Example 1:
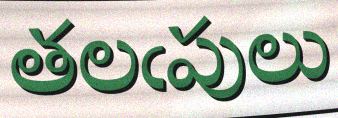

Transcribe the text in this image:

తలఁపులు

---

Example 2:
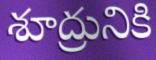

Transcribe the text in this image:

శూద్రునికి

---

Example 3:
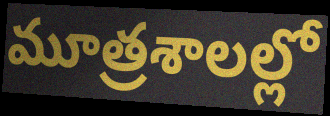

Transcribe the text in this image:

మూత్రశాలల్లో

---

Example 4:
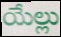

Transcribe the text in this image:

యేల్లు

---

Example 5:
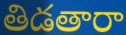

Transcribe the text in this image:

తిడతారా